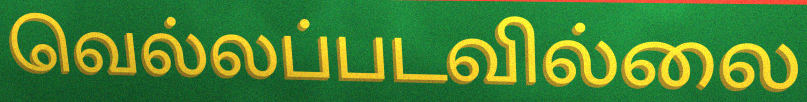
வெல்லப்படவில்லை